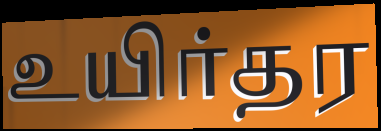
உயிர்தர